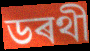
ডৰথী